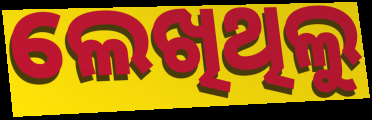
ଲେଖିଥିଲୁ